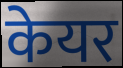
केयर